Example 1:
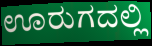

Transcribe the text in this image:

ಊರುಗದಲ್ಲಿ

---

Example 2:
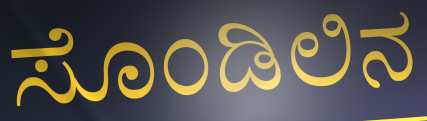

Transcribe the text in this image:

ಸೊಂಡಿಲಿನ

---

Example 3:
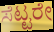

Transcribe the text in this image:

ಸೆಟ್ಟರೇ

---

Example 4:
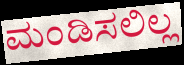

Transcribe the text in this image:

ಮಂಡಿಸಲಿಲ್ಲ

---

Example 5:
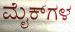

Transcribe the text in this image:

ಮೈಕ್‌ಗಳ